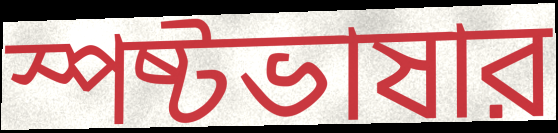
স্পষ্টভাষার